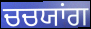
ਚਚਯਾਂਗ